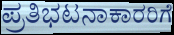
ಪ್ರತಿಭಟನಾಕಾರರಿಗೆ